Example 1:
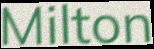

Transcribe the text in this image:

Milton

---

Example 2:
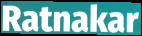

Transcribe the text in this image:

Ratnakar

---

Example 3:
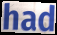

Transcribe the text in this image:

had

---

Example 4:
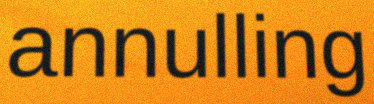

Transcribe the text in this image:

annulling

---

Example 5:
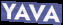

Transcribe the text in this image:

YAVA